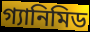
গ্যানিমিড